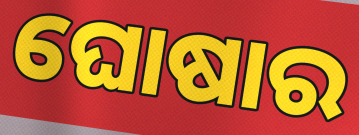
ଘୋଷାର